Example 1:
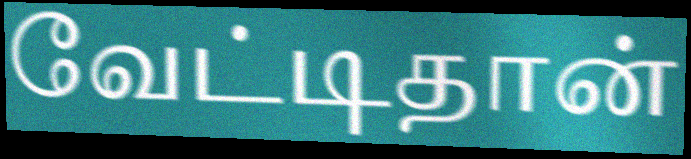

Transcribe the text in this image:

வேட்டிதான்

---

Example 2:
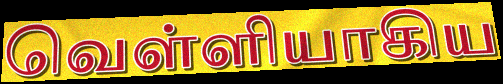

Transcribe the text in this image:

வெள்ளியாகிய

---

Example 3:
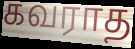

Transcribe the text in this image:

கவராத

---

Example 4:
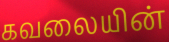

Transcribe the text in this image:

கவலையின்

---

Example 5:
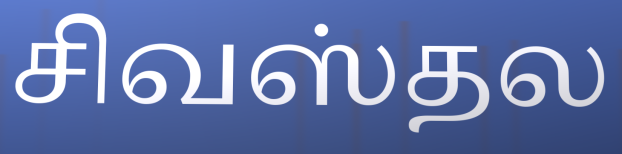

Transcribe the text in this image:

சிவஸ்தல